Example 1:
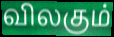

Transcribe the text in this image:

விலகும்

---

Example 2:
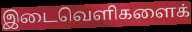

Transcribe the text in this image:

இடைவெளிகளைக்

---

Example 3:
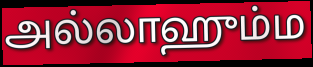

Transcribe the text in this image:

அல்லாஹும்ம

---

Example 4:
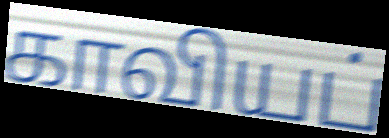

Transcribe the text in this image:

காவியப்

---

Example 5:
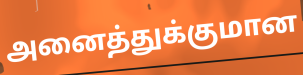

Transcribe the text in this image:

அனைத்துக்குமான